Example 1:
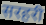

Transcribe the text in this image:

सरहरी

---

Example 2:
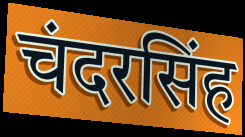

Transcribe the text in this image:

चंदरसिंह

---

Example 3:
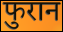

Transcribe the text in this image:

फुरान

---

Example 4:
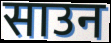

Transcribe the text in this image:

साउन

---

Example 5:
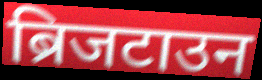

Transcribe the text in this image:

ब्रिजटाउन